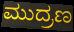
ಮುದ್ರಣ